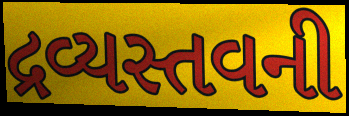
દ્રવ્યસ્તવની